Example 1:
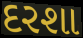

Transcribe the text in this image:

દરશા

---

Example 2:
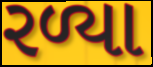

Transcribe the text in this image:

રળ્યા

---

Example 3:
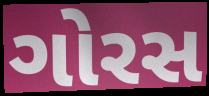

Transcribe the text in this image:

ગોરસ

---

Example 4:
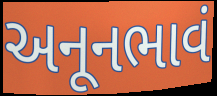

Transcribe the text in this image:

અનૂનભાવં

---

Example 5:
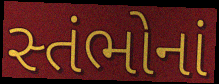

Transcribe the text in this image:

સ્તંભોનાં